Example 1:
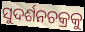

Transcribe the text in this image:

ସୁଦର୍ଶନଚକ୍ରକୁ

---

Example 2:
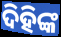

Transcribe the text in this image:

ଦିହିଙ୍କ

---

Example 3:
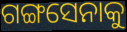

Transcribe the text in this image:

ଗଙ୍ଗସେନାକୁ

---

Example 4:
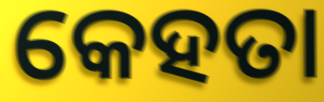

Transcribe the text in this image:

କେହତା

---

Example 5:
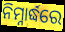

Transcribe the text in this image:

ନିମ୍ନାର୍ଦ୍ଧରେ